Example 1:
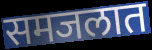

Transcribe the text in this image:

समजलात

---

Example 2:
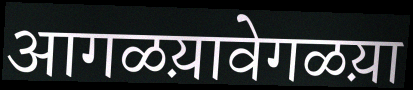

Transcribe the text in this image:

आगळय़ावेगळय़ा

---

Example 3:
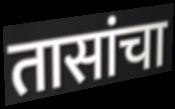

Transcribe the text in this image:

तासांचा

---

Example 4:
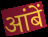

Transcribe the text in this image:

आंबें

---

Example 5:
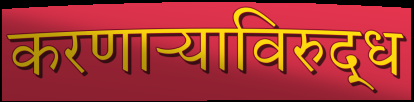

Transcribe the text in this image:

करणाऱ्याविरुद्ध